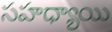
సహధ్యాయి